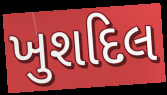
ખુશદિલ